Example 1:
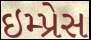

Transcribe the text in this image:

ઇમ્પ્રેસ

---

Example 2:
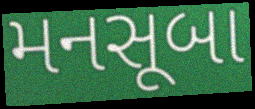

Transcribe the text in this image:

મનસૂબા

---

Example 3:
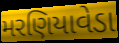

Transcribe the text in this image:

મરણિયાવેડા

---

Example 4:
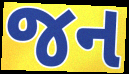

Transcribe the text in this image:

જન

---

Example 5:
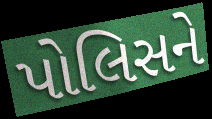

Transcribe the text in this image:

પોલિસને